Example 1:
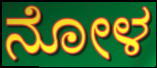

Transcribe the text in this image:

ನೋಳ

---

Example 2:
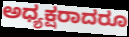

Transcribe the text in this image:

ಅಧ್ಯಕ್ಷರಾದರೂ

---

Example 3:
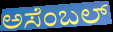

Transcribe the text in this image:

ಅಸೆಂಬಲ್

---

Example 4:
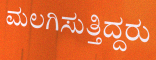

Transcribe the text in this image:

ಮಲಗಿಸುತ್ತಿದ್ದರು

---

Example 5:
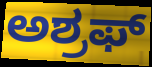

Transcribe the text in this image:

ಅಶ್ರಫ್